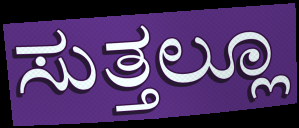
ಸುತ್ತಲ್ಲೂ